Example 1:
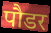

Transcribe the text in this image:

पौडर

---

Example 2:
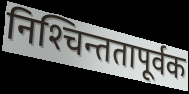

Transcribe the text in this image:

निश्चिन्ततापूर्वक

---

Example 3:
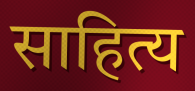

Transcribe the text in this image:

साहित्‍य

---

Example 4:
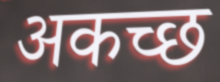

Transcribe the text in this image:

अकच्छ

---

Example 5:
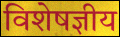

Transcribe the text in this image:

विशेषज्ञीय